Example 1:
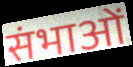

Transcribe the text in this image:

संभाओं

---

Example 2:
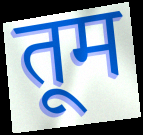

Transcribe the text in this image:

तूम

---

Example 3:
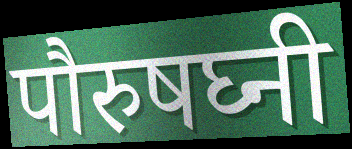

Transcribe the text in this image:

पौरुषघ्नी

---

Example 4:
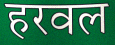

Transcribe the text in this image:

हरवल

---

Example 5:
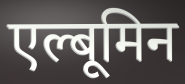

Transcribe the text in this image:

एल्बूमिन